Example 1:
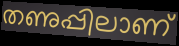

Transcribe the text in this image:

തണുപ്പിലാണ്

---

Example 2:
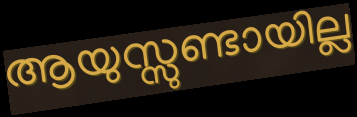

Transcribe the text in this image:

ആയുസ്സുണ്ടായില്ല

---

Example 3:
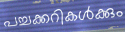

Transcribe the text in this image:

പച്ചക്കറികൾക്കും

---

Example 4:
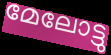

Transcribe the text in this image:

മേലോട്ടു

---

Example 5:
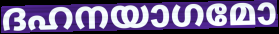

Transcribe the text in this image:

ദഹനയാഗമോ